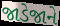
જાડેજાને